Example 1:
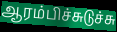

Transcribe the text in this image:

ஆரம்பிச்சுடுச்சு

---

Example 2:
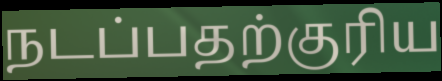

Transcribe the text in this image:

நடப்பதற்குரிய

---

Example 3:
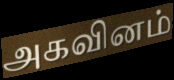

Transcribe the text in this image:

அகவினம்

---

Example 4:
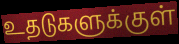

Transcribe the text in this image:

உதடுகளுக்குள்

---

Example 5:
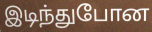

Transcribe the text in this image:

இடிந்துபோன